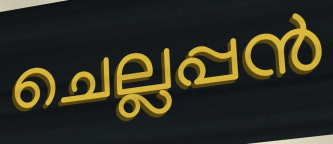
ചെല്ലപ്പൻ